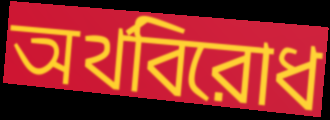
অর্থবিরোধ